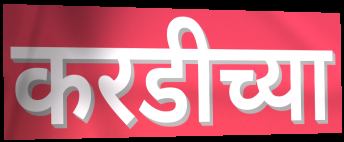
करडीच्या